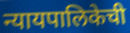
न्यायपालिकेची